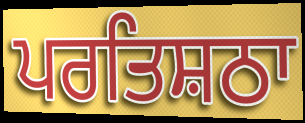
ਪਰਤਿਸ਼ਠਾ